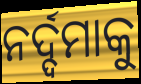
ନର୍ଦ୍ଦମାକୁ